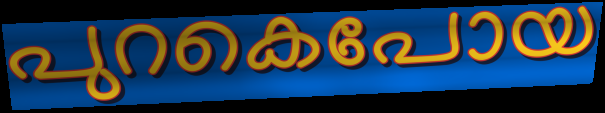
പുറകെപോയ